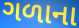
ગળાના